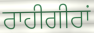
ਰਾਹੀਗੀਰਾਂ